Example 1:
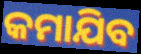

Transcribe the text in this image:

କମାଯିବ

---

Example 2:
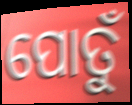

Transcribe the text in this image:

ପୋତୁଁ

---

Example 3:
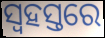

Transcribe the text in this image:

ସ୍ୱହସ୍ତରେ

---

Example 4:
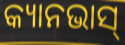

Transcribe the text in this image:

କ୍ୟାନଭାସ୍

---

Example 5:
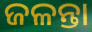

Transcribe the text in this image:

ଜଳନ୍ତା